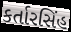
કર્તારસિંહ